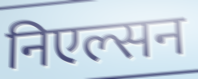
निएल्सन